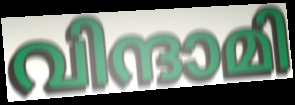
വിന്ദാമി